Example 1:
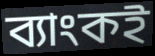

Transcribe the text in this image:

ব্যাংকই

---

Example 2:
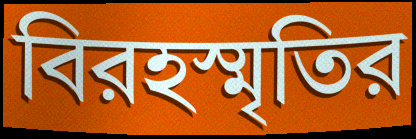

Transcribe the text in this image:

বিরহস্মৃতির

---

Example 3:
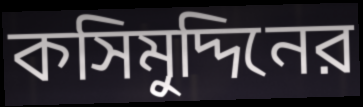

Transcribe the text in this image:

কসিমুদ্দিনের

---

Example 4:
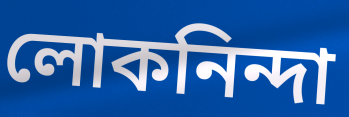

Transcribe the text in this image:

লোকনিন্দা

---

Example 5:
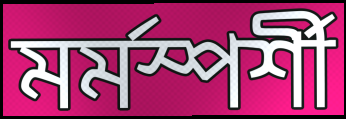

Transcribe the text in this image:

মর্মস্পর্শী